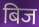
बिज